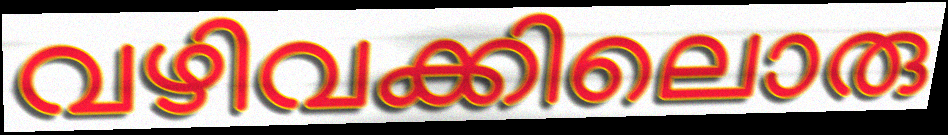
വഴിവക്കിലൊരു